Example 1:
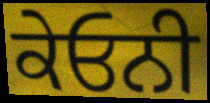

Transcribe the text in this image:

ਕੇਓਨੀ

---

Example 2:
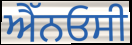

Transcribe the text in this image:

ਐੱਨਓਸੀ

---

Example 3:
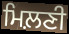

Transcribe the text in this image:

ਮਿਲ਼ਣੀ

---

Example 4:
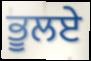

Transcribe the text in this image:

ਭੂਲਏ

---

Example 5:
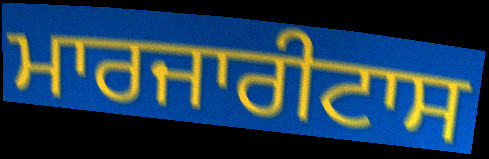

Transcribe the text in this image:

ਮਾਰਜਾਰੀਟਾਸ